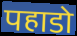
पहाडो